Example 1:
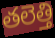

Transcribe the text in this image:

తలెత్తి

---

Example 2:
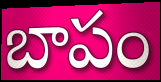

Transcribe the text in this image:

బాపం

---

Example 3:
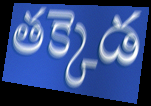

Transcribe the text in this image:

తక్కెడ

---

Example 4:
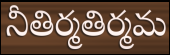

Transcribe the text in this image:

నీతిర్మతిర్మమ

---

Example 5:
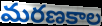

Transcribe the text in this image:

మరణకాల